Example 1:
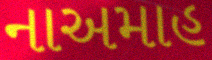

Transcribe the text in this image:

નાઅમાહ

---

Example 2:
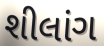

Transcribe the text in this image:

શીલાંગ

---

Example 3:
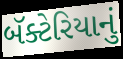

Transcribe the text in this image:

બૅક્ટેરિયાનું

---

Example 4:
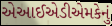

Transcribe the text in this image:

એઆઈએડીએમકેનું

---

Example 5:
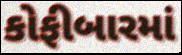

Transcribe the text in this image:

કોફીબારમાં